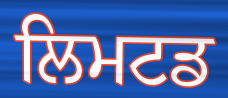
ਲਿਮਟਡ